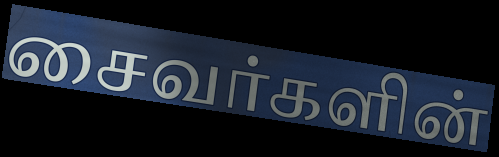
சைவர்களின்